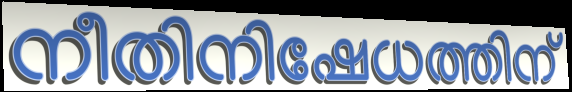
നീതിനിഷേധത്തിന്